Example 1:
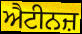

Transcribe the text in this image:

ਐਟੀਨਜ਼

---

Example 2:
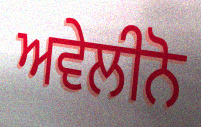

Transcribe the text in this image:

ਅਵੇਲੀਨੋ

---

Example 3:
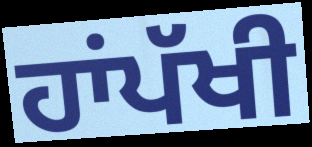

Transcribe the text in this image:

ਹਾਂਪੱਖੀ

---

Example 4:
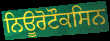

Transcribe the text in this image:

ਨਿਊਰੋਟੌਕਸਿਨ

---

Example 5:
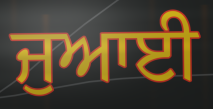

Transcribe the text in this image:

ਜੁਆਈ